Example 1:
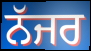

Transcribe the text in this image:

ਨੱਜਰ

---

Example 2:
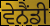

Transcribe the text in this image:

ਵੇਨੈਂਡੀ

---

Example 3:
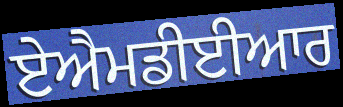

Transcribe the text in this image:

ਏਐਮਡੀਈਆਰ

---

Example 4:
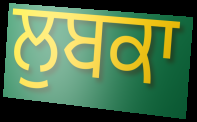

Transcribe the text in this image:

ਲੁਬਕਾ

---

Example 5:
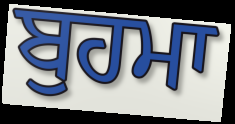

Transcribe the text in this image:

ਬੁਹਮਾ